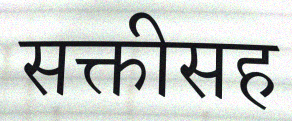
सक्तीसह